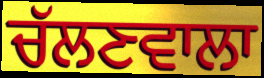
ਚੱਲਣਵਾਲਾ